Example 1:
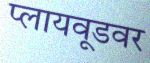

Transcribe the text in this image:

प्लायवूडवर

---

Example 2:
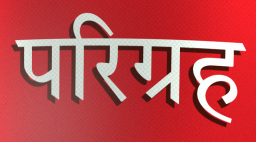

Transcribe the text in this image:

परिग्रह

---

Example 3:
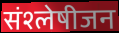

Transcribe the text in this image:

संश्लेषीजन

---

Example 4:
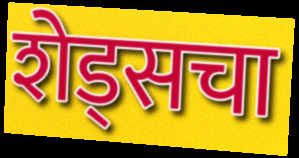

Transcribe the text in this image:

शेड्सचा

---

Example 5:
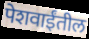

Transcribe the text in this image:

पेशवाईंतील